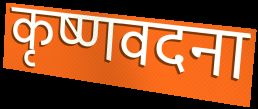
कृष्णवदना